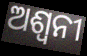
ଅଶ୍ୱନୀ